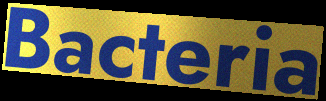
Bacteria